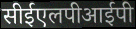
सीईएलपीआईपी